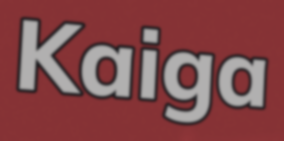
Kaiga